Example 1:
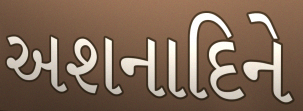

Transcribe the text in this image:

અશનાદિને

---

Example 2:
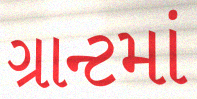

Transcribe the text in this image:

ગ્રાન્ટમાં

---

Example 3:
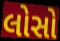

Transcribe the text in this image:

લોસો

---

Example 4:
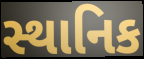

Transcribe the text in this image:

સ્થાનિક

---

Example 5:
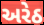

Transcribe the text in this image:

અરેઠ